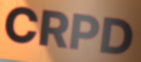
CRPD